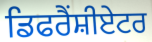
ਡਿਫਰੈਂਸ਼ੀਏਟਰ